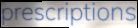
prescriptions